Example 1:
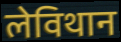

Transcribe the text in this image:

लेविथान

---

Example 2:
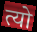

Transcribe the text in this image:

त्यो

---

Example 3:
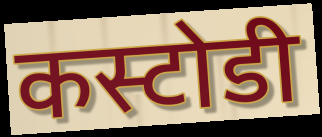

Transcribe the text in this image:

कस्टोडी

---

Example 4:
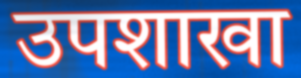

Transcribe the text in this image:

उपशाखा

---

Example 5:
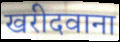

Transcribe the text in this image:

खरीदवाना